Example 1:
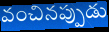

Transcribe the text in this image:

వంచినప్పుడు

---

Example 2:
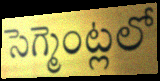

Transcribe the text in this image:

సెగ్మెంట్లలో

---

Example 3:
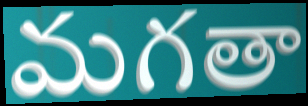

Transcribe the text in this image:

మగతా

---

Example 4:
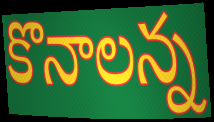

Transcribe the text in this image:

కొనాలన్న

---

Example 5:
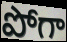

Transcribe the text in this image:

పోగా